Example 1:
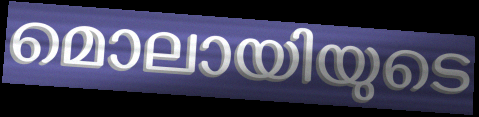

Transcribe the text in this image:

മൊലായിയുടെ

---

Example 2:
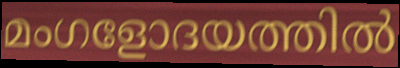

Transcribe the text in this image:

മംഗളോദയത്തിൽ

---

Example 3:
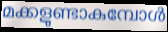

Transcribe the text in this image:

മക്കളുണ്ടാകുമ്പോൾ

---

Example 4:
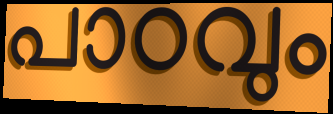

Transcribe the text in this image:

പാഠവും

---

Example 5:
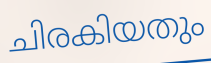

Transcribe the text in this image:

ചിരകിയതും